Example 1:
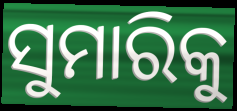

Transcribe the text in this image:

ସୁମାରିକୁ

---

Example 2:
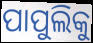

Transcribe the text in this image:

ପାପୁଲିକୁ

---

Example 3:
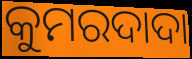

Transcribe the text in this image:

କୁମରଦାଦା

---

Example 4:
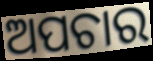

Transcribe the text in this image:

ଅପଚାର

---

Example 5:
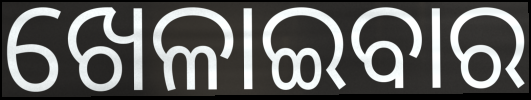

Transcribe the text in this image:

ଖେଳାଇବାର